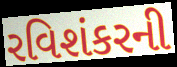
રવિશંકરની